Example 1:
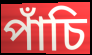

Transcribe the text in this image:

পাঁচি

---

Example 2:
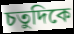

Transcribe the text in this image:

চতুদিকে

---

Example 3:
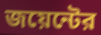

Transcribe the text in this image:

জয়েন্টের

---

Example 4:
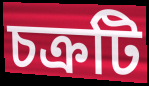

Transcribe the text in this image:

চক্রটি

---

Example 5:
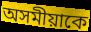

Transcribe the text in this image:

অসমীয়াকে